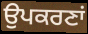
ਉਪਕਰਣਾਂ